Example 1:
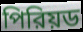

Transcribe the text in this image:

পিরিয়ড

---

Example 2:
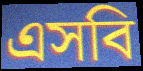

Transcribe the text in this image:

এসবি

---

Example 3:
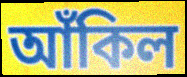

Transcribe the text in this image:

আঁকিল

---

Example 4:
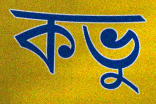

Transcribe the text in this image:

কভু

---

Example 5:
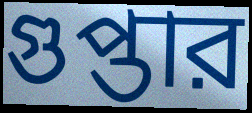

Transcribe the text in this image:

গুপ্তার